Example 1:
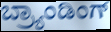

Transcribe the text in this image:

ಬ್ರ್ಯಾಂಡಿಂಗ್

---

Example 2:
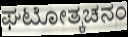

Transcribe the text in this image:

ಘಟೋತ್ಕಚನಂ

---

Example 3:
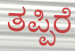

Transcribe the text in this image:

ತಪ್ಪಿರೆ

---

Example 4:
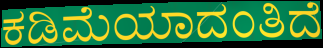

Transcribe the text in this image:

ಕಡಿಮೆಯಾದಂತಿದೆ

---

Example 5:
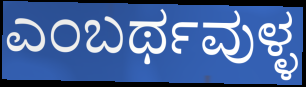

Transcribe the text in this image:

ಎಂಬರ್ಥವುಳ್ಳ